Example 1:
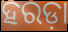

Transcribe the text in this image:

ହରଡ଼ା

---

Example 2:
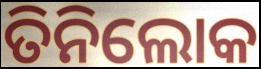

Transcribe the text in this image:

ତିନିଲୋକ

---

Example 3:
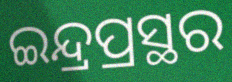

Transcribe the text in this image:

ଇନ୍ଦ୍ରପ୍ରସ୍ଥର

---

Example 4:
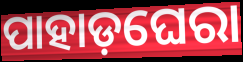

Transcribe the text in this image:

ପାହାଡ଼ଘେରା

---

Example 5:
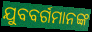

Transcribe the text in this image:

ଯୁବବର୍ଗମାନଙ୍କ